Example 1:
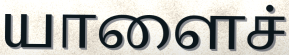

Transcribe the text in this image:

யாளைச்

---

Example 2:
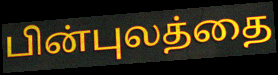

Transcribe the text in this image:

பின்புலத்தை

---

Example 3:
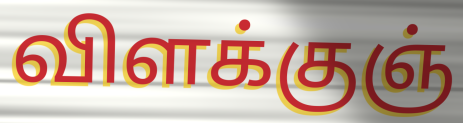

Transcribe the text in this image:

விளக்குஞ்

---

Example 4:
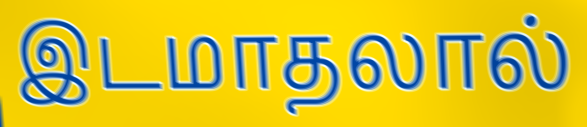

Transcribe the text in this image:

இடமாதலால்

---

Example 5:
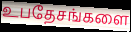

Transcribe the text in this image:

உபதேசங்களை